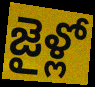
జైళ్లో